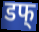
डफ्